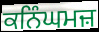
ਕਨਿੰਘਮਜ਼